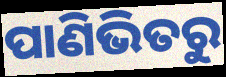
ପାଣିଭିତରୁ